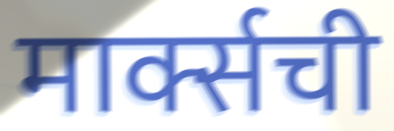
मार्क्सची